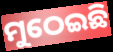
ମୁଠେଇଛି